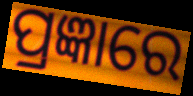
ପ୍ରଜ୍ଞାରେ